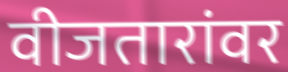
वीजतारांवर